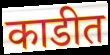
काडीत